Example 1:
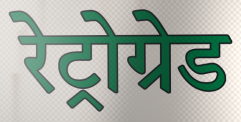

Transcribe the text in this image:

रेट्रोग्रेड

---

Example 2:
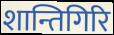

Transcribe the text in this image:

शान्तिगिरि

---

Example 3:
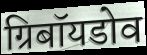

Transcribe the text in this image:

ग्रिबॉयडोव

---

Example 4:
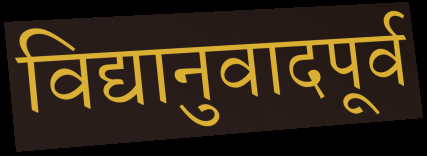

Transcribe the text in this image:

विद्यानुवादपूर्व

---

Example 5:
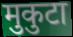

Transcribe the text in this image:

मुकुटा